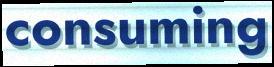
consuming